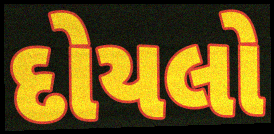
દોયલો